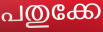
പതുക്കേ